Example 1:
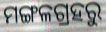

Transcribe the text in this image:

ମଙ୍ଗଳଗ୍ରହରୁ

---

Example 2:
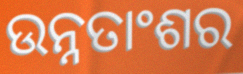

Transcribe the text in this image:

ଉନ୍ନତାଂଶର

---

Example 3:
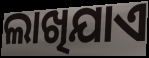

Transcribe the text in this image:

ଲାଖିଯାଏ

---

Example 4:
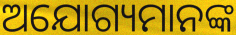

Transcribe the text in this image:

ଅଯୋଗ୍ୟମାନଙ୍କ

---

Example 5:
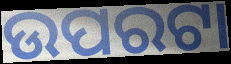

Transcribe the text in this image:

ଉପରଟା